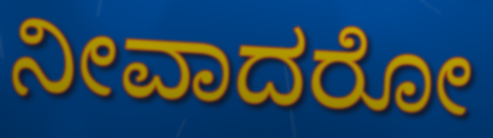
ನೀವಾದರೋ